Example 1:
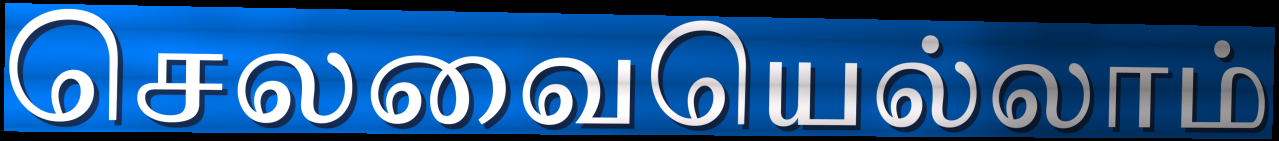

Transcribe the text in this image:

செலவையெல்லாம்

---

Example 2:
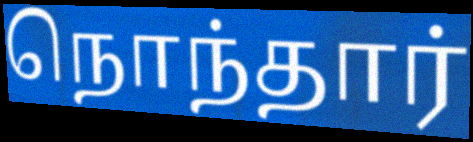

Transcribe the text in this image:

நொந்தார்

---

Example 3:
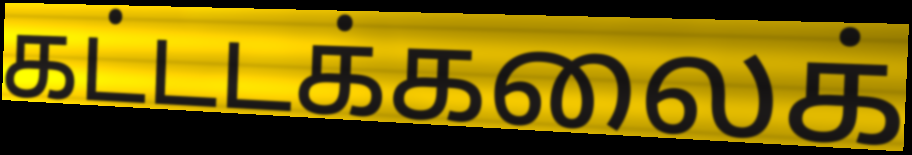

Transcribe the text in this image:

கட்டடக்கலைக்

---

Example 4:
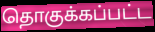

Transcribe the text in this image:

தொகுக்கப்பட்ட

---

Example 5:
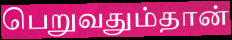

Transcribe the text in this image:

பெறுவதும்தான்